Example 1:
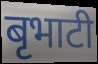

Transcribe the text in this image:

बृभाटी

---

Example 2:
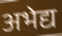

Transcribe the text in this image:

अभेद्य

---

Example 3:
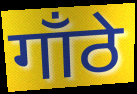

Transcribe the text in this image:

गाँठे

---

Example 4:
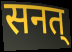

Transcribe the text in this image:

सनत्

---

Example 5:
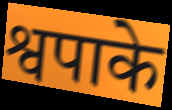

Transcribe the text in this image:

श्वपाके